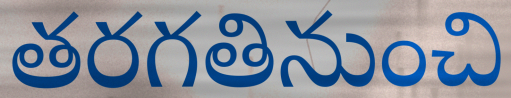
తరగతినుంచి